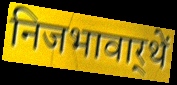
निजभावार्थें